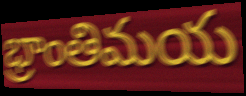
భ్రాంతిమయ